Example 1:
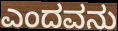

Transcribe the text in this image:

ಎಂದವನು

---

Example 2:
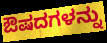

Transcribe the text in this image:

ಔಷದಗಳನ್ನು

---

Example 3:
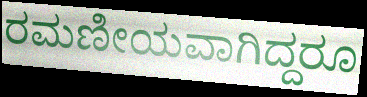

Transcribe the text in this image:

ರಮಣೀಯವಾಗಿದ್ದರೂ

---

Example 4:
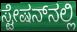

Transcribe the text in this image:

ಸ್ಟೇಷನ್‌ನಲ್ಲಿ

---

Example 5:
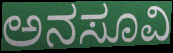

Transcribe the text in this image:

ಅನಸೂವಿ